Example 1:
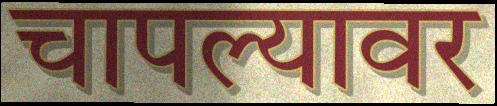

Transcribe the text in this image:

चापल्यावर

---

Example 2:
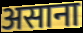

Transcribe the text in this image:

असाना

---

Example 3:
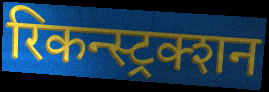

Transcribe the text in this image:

रिकन्स्ट्रक्शन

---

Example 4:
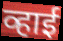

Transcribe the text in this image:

व्हाई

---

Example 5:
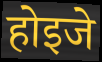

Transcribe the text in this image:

होइजे